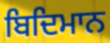
ਬਿਦਿਮਾਨ